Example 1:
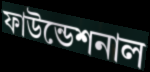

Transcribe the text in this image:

ফাউন্ডেশনাল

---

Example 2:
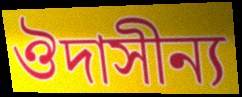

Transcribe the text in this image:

ঔদাসীন্য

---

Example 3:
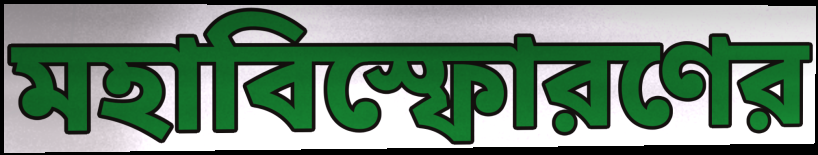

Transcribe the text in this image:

মহাবিস্ফোরণের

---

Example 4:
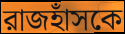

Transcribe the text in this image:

রাজহাঁসকে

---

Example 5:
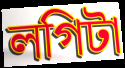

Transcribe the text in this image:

লগিটা